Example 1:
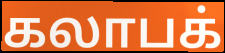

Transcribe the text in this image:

கலாபக்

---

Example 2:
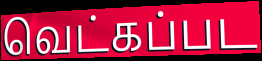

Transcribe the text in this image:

வெட்கப்பட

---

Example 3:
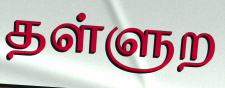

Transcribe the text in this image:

தள்ளுற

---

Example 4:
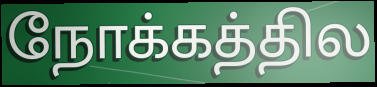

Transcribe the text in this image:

நோக்கத்தில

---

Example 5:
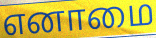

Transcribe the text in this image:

எனாமை